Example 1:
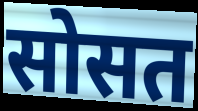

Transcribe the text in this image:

सोसत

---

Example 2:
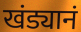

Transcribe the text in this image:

खंड्यानं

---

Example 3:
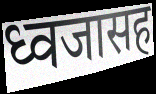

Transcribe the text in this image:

ध्वजासह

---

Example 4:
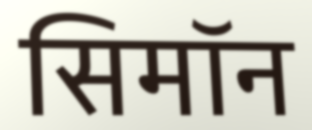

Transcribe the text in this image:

सिमॉन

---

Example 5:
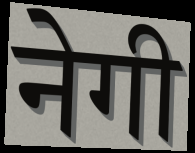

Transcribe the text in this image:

नेगी